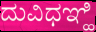
ದುವಿಧಞ್ಹಿ